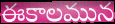
ఈకాలమున